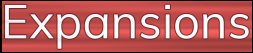
Expansions